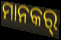
ମାନକର୍